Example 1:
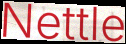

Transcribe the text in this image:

Nettle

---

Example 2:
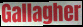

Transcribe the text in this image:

Gallagher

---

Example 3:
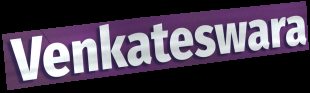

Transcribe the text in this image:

Venkateswara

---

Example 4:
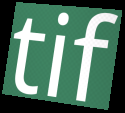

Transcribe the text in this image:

tif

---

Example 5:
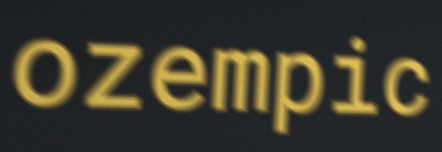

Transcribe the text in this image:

ozempic